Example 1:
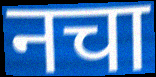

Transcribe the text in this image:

नचा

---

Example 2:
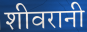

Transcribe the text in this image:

शीवरानी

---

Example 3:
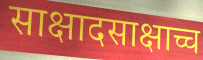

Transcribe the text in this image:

साक्षादसाक्षाच्च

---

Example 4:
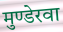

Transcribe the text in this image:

मुण्डेरवा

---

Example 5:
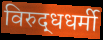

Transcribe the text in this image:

विरुद्धधर्मी